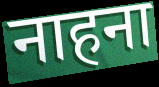
नाहना